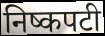
निष्कपटी